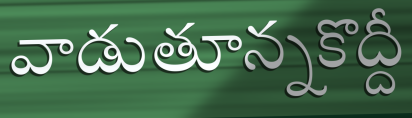
వాడుతూన్నకొద్దీ